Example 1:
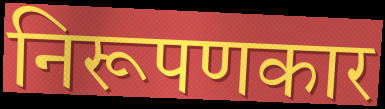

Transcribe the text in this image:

निरूपणकार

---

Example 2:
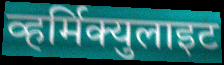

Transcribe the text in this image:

व्हर्मिक्युलाइट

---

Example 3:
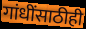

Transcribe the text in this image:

गांधींसाठीही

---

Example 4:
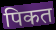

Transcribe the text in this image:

पिकत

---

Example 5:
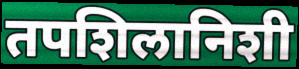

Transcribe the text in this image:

तपशिलानिशी